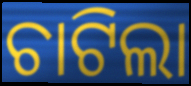
ଚାଟିଲା